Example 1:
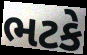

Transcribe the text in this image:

ભટકે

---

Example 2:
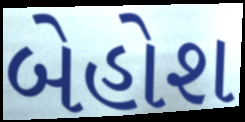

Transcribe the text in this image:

બેહોશ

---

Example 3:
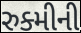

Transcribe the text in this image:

રુક્મીની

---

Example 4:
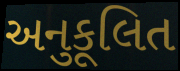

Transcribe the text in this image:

અનુકૂલિત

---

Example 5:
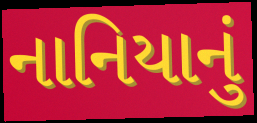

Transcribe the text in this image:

નાનિયાનું